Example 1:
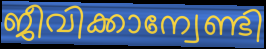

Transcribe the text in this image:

ജീവിക്കാന്വേണ്ടി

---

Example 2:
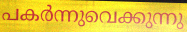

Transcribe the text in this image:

പകർന്നുവെക്കുന്നു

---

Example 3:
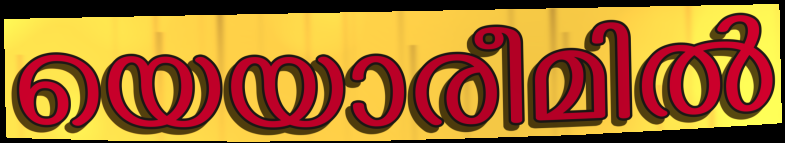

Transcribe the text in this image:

യെയാരീമിൽ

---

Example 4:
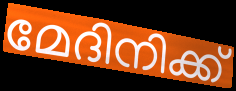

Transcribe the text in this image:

മേദിനിക്ക്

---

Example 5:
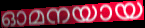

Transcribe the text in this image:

ഓമനയായ